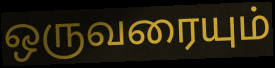
ஒருவரையும்